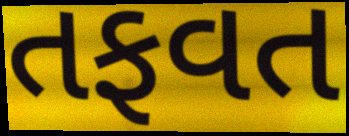
તફવત